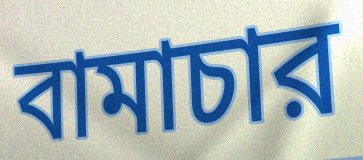
বামাচার